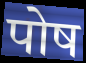
पोष